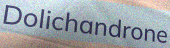
Dolichandrone